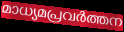
മാധ്യമപ്രവർത്തന